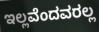
ಇಲ್ಲವೆಂದವರಲ್ಲ